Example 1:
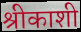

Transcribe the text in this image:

श्रीकाशी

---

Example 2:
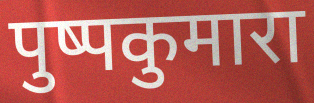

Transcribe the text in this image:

पुष्पकुमारा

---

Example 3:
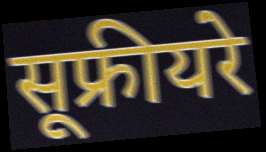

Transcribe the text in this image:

सूफ्रीयरे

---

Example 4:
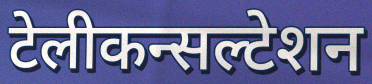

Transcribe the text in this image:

टेलीकन्सल्टेशन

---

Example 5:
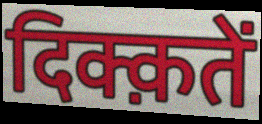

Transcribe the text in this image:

दिक्क़तें